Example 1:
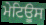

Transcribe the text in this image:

ਮੇਟਿਊਸ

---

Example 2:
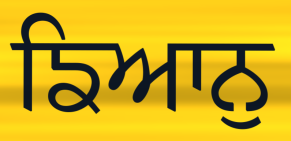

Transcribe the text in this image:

ਙਿਆਨੁ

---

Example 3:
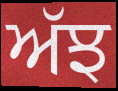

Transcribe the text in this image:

ਅੱਝ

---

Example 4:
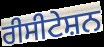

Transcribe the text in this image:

ਰੀਸੀਟੇਸ਼ਨ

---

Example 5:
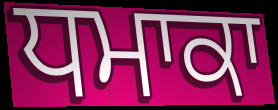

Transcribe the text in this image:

ਧਮਾਕਾ